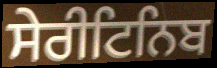
ਸੇਰੀਟਿਨਿਬ